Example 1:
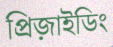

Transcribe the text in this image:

প্রিজ়াইডিং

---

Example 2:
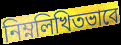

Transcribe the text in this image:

নিম্নলিখিতভাবে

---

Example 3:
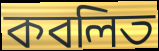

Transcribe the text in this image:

কবলিত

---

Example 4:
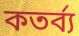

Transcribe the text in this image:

কতর্ব্য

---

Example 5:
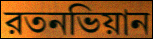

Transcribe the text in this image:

রতনভিয়ান